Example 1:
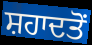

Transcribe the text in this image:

ਸ਼ਹਾਦਤੋਂ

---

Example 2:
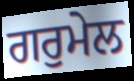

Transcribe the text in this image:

ਗਰੁਮੇਲ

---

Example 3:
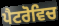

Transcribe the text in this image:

ਪੈਟਰੋਵਿਚ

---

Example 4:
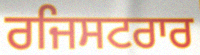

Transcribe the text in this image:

ਰਜਿਸਟਰਾਰ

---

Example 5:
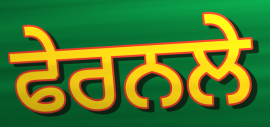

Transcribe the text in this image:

ਫੇਰਨਲੇ